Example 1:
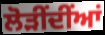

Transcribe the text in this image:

ਲੋੜੀਂਦੀਂਆਂ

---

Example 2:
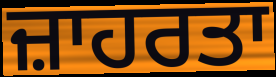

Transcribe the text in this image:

ਜ਼ਾਹਰਤਾ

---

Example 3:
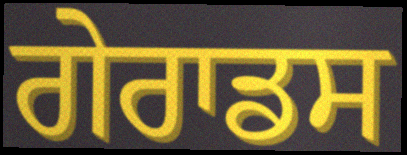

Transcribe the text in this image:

ਗੇਰਾਡਸ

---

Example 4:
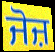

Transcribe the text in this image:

ਜੋਜ਼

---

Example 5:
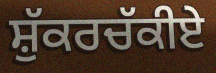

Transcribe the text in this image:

ਸ਼ੁੱਕਰਚੱਕੀਏ